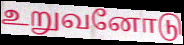
உறுவனோடு